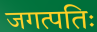
जगत्पतिः